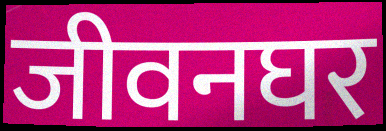
जीवनघर